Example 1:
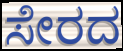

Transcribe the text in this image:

ಸೇರದ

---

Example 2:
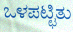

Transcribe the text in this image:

ಒಳಪಟ್ಟಿತು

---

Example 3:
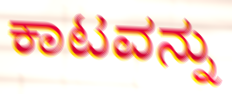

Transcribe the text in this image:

ಕಾಟವನ್ನು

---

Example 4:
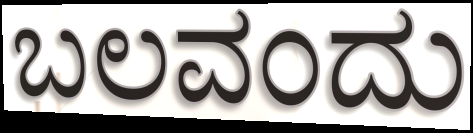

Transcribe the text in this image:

ಬಲವಂದು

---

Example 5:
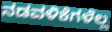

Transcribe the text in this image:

ನಡವಳಿಕೆಗಳೆಲ್ಲ